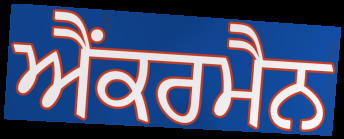
ਐਂਕਰਮੈਨ